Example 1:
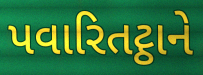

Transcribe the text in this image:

પવારિતટ્ઠાને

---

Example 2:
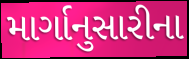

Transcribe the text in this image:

માર્ગાનુસારીના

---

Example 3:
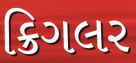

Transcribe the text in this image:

ક્રિગલર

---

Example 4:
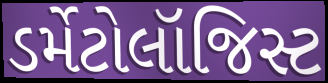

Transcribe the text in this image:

ડર્મેટોલૉજિસ્ટ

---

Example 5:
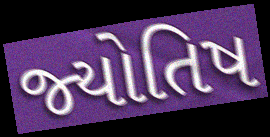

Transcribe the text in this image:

જ્‍યોતિષ